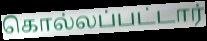
கொல்லப்பட்டார்